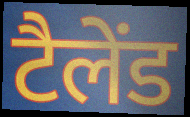
टैलेंड